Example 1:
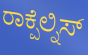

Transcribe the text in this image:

ರಾಕ್ಪೆಲ್ನಿಸ್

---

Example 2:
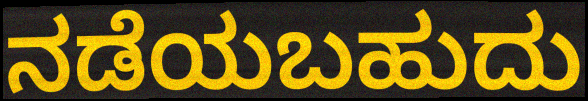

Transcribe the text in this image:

ನಡೆಯಬಹುದು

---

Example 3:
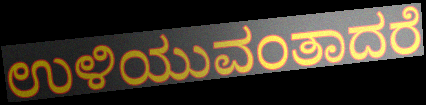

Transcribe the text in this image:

ಉಳಿಯುವಂತಾದರೆ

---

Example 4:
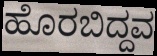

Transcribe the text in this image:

ಹೊರಬಿದ್ದವ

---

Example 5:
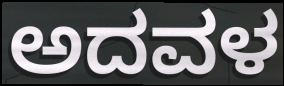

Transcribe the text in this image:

ಅದವಳ